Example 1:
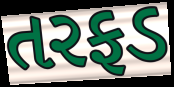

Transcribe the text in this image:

તરફડ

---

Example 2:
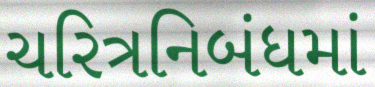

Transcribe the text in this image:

ચરિત્રનિબંધમાં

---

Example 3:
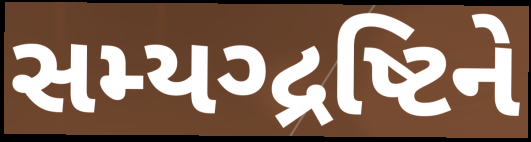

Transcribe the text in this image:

સમ્યગ્દ્રષ્ટિને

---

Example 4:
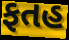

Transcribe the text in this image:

ફતહ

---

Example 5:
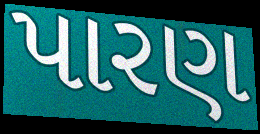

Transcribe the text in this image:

પારણ